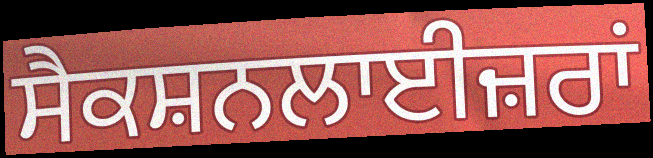
ਸੈਕਸ਼ਨਲਾਈਜ਼ਰਾਂ